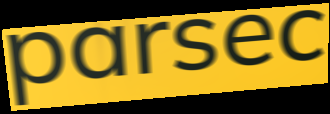
parsec